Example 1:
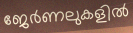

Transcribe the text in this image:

ജേർണലുകളിൽ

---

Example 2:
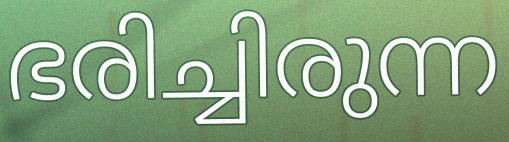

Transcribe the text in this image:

ഭരിച്ചിരുന്ന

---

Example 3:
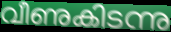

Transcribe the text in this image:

വീണുകിടന്നു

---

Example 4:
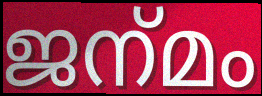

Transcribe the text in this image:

ജന്‌മം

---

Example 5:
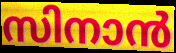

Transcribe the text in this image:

സിനാൻ